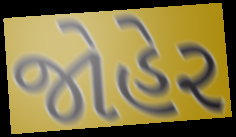
જોહેર